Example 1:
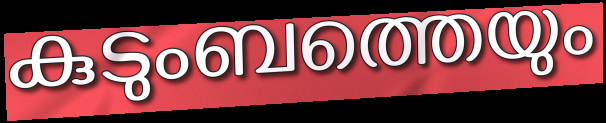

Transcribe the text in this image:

കുടുംബത്തെയും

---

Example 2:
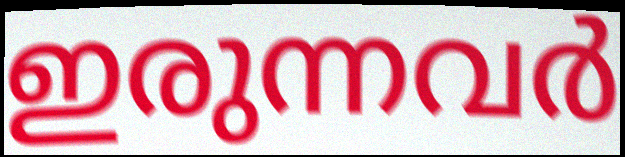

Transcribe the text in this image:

ഇരുന്നവർ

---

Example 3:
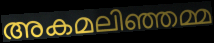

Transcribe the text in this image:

അകമലിഞ്ഞമ്മ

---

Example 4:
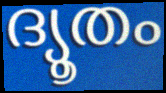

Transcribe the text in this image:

ദ്യൂതം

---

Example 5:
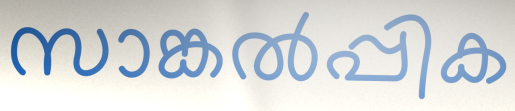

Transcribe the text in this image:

സാങ്കൽപ്പിക